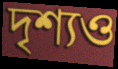
দৃশ্যও